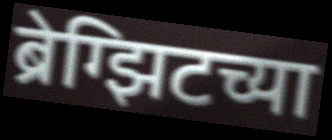
ब्रेग्झिटच्या